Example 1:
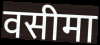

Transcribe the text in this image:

वसीमा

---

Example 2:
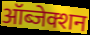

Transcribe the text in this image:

ऑब्‍जेक्‍शन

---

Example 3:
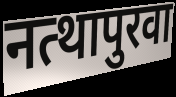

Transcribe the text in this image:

नत्थापुरवा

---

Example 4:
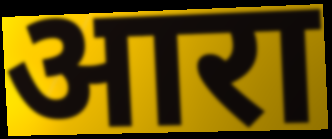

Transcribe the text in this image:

आरा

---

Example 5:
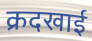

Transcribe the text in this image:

क्रदखाई